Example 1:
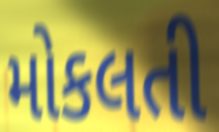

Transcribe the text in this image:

મોકલતી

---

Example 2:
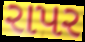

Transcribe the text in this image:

રાપર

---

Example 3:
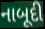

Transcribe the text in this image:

નાબૂદી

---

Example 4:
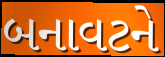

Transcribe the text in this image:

બનાવટને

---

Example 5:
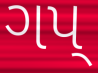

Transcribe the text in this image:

ગપ્